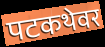
पटकथेवर